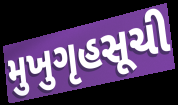
મુખુગૃહસૂચી